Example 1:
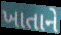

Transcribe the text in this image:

ખાતાને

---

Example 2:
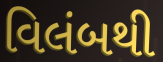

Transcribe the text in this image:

વિલંબથી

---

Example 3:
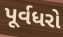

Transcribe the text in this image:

પૂર્વધરો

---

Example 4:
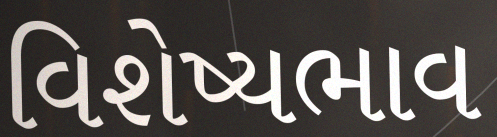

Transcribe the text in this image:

વિશેષ્યભાવ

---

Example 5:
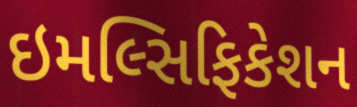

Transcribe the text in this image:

ઇમલ્સિફિકેશન